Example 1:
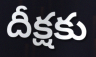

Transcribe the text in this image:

దీక్షకు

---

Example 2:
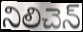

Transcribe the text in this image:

నిలిచెన్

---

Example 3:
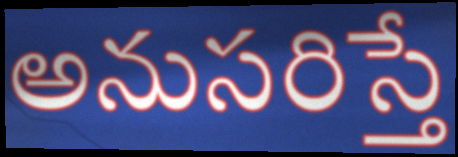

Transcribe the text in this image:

అనుసరిస్తే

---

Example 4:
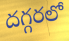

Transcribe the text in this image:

దగ్గరలో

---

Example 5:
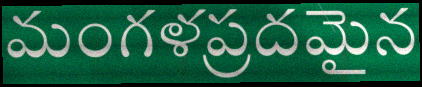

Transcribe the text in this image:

మంగళప్రదమైన